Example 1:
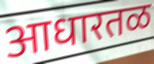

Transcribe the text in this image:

आधारतळ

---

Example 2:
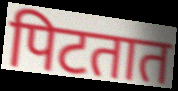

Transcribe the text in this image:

पिटतात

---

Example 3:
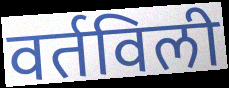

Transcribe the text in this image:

वर्तविली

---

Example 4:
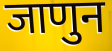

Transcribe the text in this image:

जाणुन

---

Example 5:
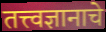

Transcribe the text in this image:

तत्त्वज्ञानाचे